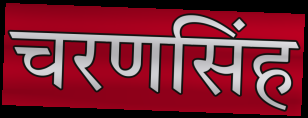
चरणसिंह